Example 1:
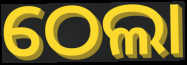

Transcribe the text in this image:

ଠେଲା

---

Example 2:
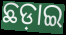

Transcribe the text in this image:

ଛଡ଼ାଇ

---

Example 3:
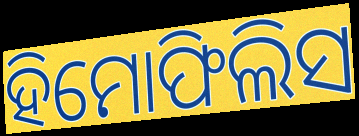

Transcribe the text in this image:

ହିମୋଫିଲିସ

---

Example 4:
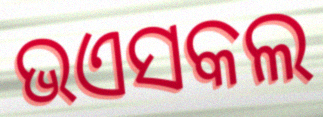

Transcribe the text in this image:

ଭଏସକଲ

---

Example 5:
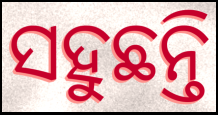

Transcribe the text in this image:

ସହୁଛନ୍ତି